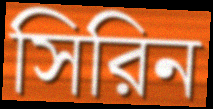
সিরিন